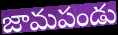
జామపండు